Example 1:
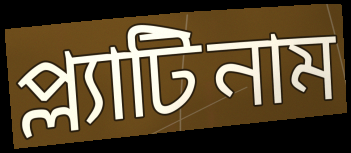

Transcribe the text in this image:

প্ল্যাটিনাম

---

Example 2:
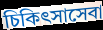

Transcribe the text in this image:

চিকিৎসাসেবা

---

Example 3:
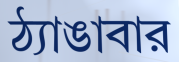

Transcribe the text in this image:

ঠ্যাঙাবার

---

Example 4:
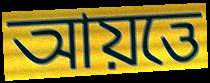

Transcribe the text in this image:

আয়ত্তে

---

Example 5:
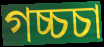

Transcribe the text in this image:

গচ্চচা